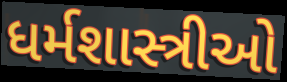
ધર્મશાસ્ત્રીઓ